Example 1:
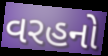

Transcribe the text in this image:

વરહનો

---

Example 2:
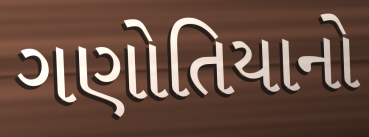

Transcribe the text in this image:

ગણોતિયાનો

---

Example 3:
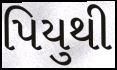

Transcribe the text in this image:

પિયુથી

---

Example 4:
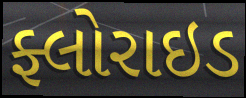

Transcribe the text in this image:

ફ્લોરાઇડ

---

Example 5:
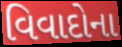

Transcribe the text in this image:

વિવાદોના